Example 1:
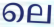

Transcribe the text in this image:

ലെ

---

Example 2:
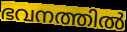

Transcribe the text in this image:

ഭവനത്തിൽ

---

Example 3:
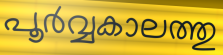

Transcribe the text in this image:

പൂർവ്വകാലത്തു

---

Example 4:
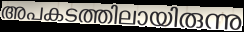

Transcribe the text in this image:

അപകടത്തിലായിരുന്നു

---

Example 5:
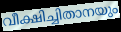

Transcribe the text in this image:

വീക്ഷിച്ചിതാനയും